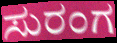
ಸುರಂಗ